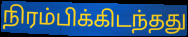
நிரம்பிக்கிடந்தது